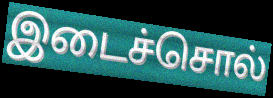
இடைச்சொல்